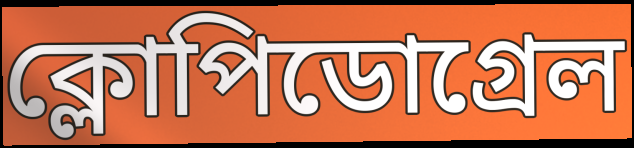
ক্লোপিডোগ্রেল